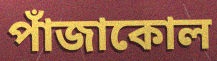
পাঁজাকোল